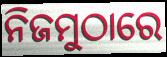
ନିଜମୁଠାରେ